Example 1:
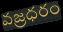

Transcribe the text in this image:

వజ్రధరం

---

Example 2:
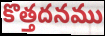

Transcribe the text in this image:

కొత్తదనము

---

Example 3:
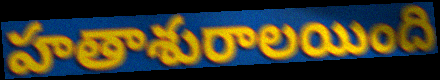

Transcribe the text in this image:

హతాశురాలయింది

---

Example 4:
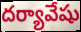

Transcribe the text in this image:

దర్యావేషు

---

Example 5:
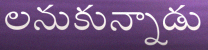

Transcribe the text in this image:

లనుకున్నాడు